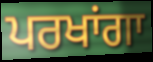
ਪਰਖਾਂਗਾ